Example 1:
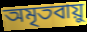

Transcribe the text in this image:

অমৃতবায়ু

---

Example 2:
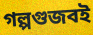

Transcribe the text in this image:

গল্পগুজবই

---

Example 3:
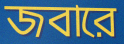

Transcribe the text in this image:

জবারে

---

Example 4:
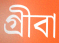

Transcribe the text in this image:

গ্রীবা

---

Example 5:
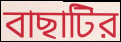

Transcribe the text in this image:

বাছাটির